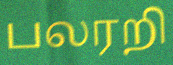
பலரறி